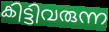
കിട്ടിവരുന്ന